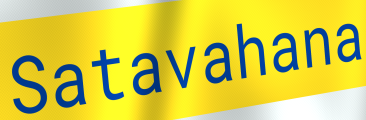
Satavahana